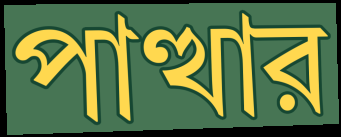
পাত্থার